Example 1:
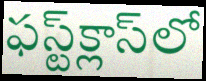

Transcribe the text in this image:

ఫస్ట్‌క్లాస్‌లో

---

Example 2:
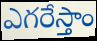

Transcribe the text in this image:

ఎగరేస్తాం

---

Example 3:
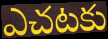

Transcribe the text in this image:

ఎచటకు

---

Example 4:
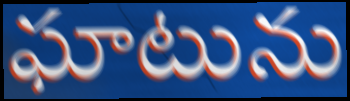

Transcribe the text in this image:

ఘాటును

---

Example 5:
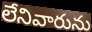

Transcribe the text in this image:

లేనివారును